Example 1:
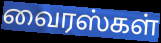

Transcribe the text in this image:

வைரஸ்கள்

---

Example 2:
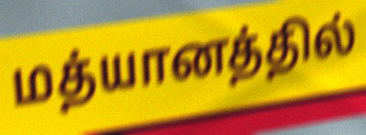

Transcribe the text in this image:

மத்யானத்தில்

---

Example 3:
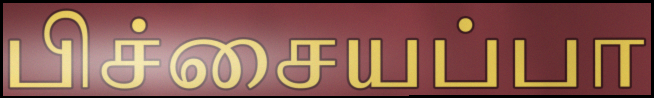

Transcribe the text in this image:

பிச்சையப்பா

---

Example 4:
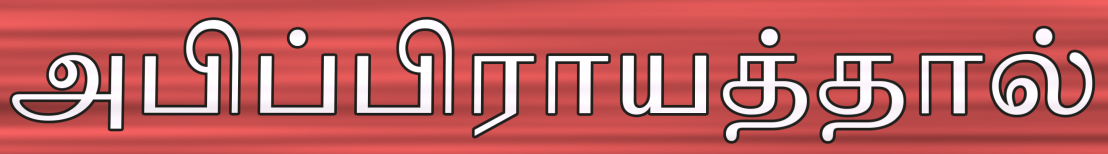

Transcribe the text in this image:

அபிப்பிராயத்தால்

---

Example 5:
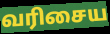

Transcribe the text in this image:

வரிசைய